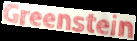
Greenstein